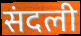
संदली